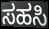
ಸಹಸಿ